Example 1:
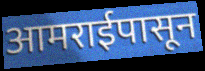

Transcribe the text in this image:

आमराईपासून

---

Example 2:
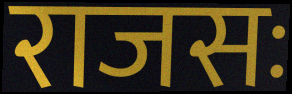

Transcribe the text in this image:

राजसः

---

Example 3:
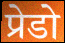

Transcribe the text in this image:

प्रेडो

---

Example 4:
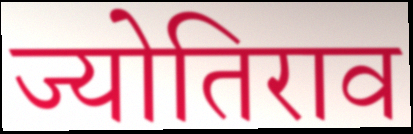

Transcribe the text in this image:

ज्योतिराव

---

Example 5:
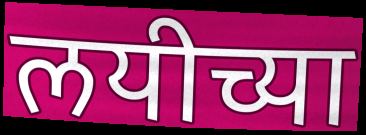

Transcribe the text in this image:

लयीच्या